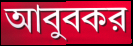
আবুবকর